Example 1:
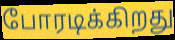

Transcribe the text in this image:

போரடிக்கிறது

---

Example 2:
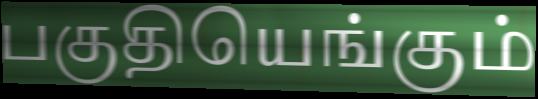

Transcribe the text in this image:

பகுதியெங்கும்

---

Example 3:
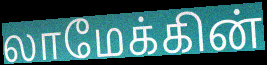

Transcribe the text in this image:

லாமேக்கின்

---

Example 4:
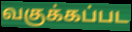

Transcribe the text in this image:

வகுக்கப்பட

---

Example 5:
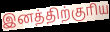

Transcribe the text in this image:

இனத்திற்குரிய